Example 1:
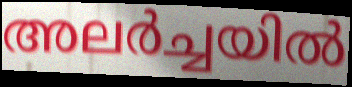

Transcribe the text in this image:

അലർച്ചയിൽ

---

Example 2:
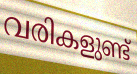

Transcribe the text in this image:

വരികളുണ്ട്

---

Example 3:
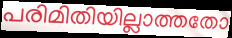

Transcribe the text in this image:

പരിമിതിയില്ലാത്തതോ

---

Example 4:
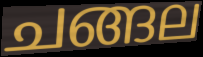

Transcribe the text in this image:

ചങ്ങല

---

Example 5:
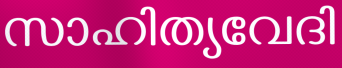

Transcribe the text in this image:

സാഹിത്യവേദി